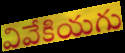
వివేకియగు